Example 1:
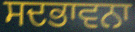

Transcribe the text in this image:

ਸਦਭਾਵਨਾ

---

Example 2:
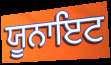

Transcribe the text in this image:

ਯੂਨਾਇਟ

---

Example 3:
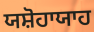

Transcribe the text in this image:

ਯਸ਼ੋਹਾਯਾਹ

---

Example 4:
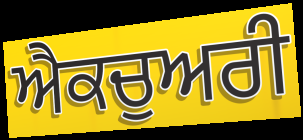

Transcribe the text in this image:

ਐਕਚੁਅਰੀ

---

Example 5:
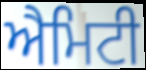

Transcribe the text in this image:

ਐਮਿਟੀ